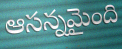
ఆసన్నమైంది